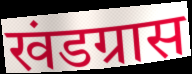
खंडग्रास